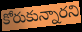
కోరుకున్నారని